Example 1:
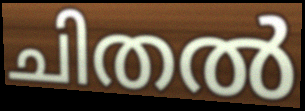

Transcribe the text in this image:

ചിതൽ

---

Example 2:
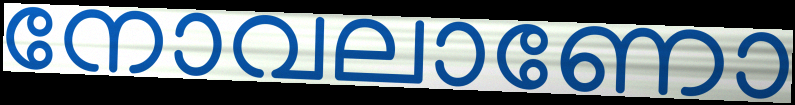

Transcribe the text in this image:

നോവലാണോ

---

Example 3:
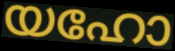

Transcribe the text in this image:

യഹോ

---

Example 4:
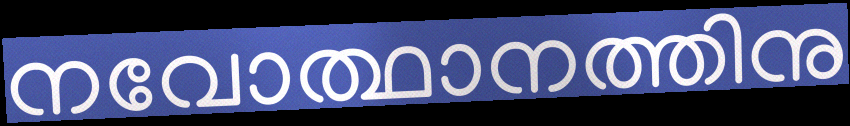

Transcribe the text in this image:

നവോത്ഥാനത്തിനു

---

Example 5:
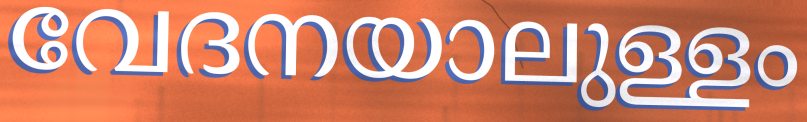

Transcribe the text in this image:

വേദനയാലുള്ളം